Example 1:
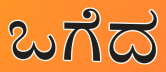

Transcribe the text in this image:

ಒಗೆದ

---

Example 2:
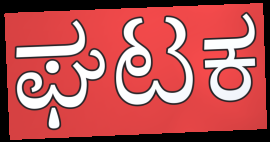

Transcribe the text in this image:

ಘಟಕ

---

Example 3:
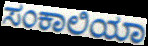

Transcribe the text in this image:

ಸಂಕಾಲಿಯಾ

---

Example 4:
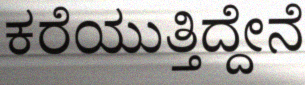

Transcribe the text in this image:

ಕರೆಯುತ್ತಿದ್ದೇನೆ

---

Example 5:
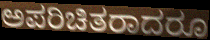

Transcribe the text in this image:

ಅಪರಿಚಿತರಾದರೂ